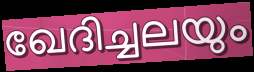
ഖേദിച്ചലയും